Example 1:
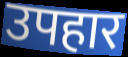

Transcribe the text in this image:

उपहार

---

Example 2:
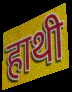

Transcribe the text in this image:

हाथी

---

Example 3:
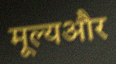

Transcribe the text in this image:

मूल्यऔर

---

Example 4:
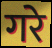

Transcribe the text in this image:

गरे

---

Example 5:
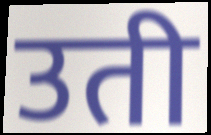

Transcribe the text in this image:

उती